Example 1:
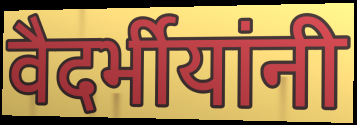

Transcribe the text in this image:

वैदर्भीयांनी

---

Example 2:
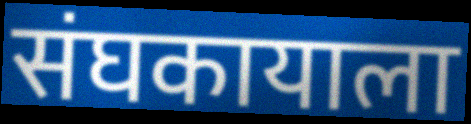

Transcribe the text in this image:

संघकायाला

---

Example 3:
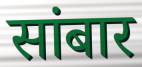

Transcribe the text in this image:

सांबार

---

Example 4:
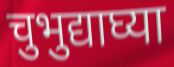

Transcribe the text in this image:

चुभुद्याघ्या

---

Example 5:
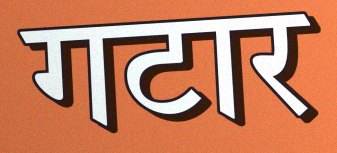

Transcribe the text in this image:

गटार